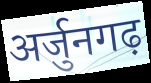
अर्जुनगढ़